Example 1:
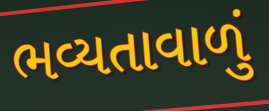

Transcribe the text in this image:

ભવ્યતાવાળું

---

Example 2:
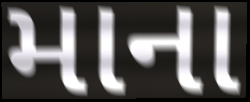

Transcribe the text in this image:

માના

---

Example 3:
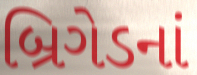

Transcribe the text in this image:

બ્રિગેડનાં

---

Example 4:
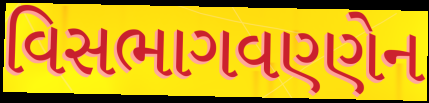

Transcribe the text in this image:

વિસભાગવણ્ણેન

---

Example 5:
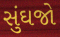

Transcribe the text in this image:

સુંઘજો